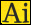
Ai